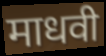
माधवी